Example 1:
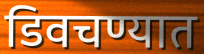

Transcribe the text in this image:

डिवचण्यात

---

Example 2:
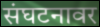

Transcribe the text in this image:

संघटनावर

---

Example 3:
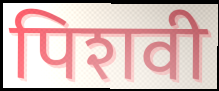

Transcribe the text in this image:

पिशवी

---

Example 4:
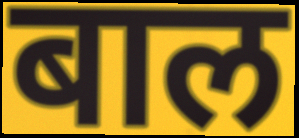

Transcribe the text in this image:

बाल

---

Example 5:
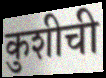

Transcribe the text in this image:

कुशीची